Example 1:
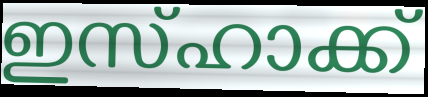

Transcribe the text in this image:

ഇസ്ഹാക്ക്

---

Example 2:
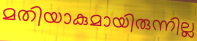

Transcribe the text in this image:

മതിയാകുമായിരുന്നില്ല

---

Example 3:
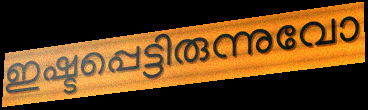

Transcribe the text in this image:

ഇഷ്ടപ്പെട്ടിരുന്നുവോ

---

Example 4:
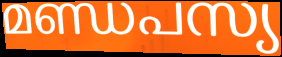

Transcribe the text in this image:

മണ്ഡപസ്യ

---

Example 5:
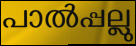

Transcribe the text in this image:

പാൽപ്പല്ലു